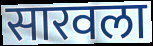
सारवला